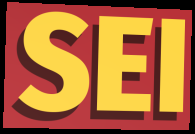
SEI